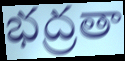
భద్రతా